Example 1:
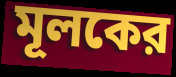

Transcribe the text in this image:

মূলকের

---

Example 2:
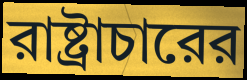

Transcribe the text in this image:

রাষ্ট্রাচারের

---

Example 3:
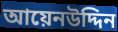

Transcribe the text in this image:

আয়েনউদ্দিন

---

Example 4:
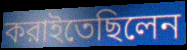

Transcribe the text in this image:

করাইতেছিলেন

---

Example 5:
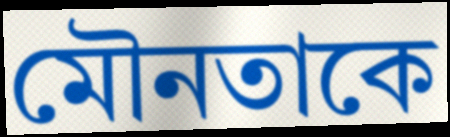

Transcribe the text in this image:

মৌনতাকে